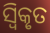
ସ୍ଵିକୃତ